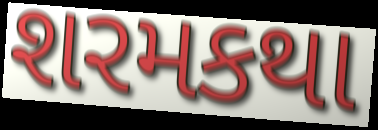
શરમકથા